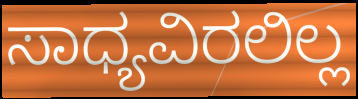
ಸಾಧ್ಯವಿರಲಿಲ್ಲ